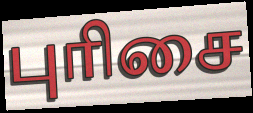
புரிசை